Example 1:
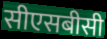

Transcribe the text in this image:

सीएसबीसी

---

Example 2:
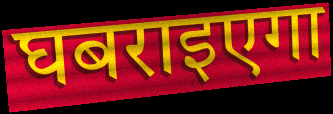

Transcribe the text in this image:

घबराइएगा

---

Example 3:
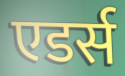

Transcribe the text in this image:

एडर्स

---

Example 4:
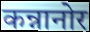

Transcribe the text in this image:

कन्नानोर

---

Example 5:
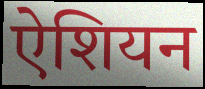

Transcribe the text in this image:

ऐशियन